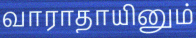
வாராதாயினும்